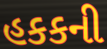
હકકની